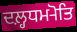
ਦਲ਼੍ਹਧਮ੍ਮੋਤਿ